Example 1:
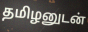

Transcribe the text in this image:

தமிழனுடன்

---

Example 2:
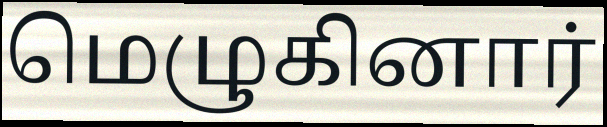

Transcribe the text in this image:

மெழுகினார்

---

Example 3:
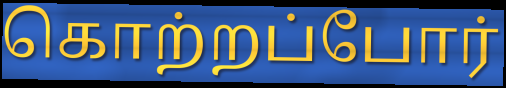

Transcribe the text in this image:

கொற்றப்போர்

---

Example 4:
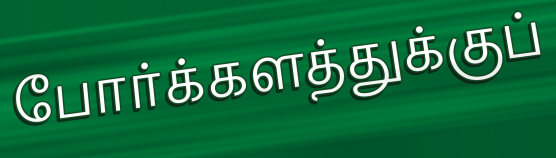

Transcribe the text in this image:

போர்க்களத்துக்குப்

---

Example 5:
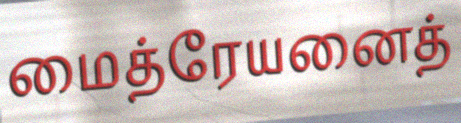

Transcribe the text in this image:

மைத்ரேயனைத்